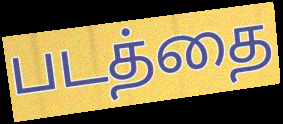
படத்தை